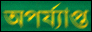
অপৰ্য্যাপ্ত